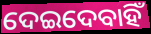
ଦେଇଦେବାହିଁ